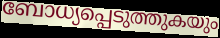
ബോധ്യപ്പെടുത്തുകയും